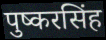
पुष्करसिंह